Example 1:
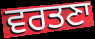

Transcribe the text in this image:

ਵਰਤਣਾ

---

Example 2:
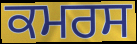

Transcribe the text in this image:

ਕਮਰਸ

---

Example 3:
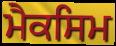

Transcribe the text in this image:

ਮੈਕਸਿਮ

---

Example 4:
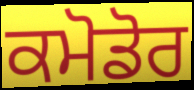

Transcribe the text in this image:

ਕਮੋਡੋਰ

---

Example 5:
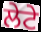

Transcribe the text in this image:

ਲੇਟੇ